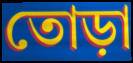
তোড়া